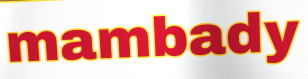
mambady